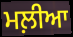
ਮਲ਼ੀਆ